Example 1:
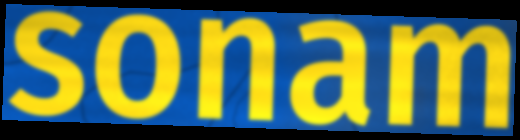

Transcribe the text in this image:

sonam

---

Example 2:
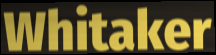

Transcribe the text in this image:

Whitaker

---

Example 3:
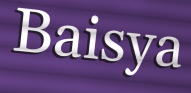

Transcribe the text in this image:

Baisya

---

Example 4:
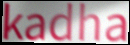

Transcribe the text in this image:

kadha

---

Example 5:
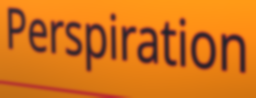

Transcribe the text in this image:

Perspiration